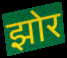
झोर